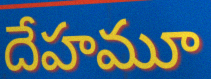
దేహమూ